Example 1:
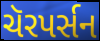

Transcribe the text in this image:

ચૅરપર્સન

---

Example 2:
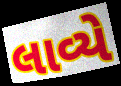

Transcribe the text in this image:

લાવ્યે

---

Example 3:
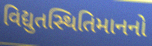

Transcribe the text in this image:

વિદ્યુતસ્થિતિમાનનો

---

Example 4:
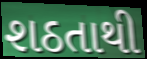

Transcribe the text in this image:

શઠતાથી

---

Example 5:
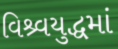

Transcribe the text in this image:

વિશ્ર્વયુદ્ધમાં